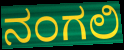
ನಂಗಲಿ